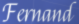
Fernand